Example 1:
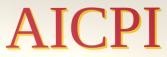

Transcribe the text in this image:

AICPI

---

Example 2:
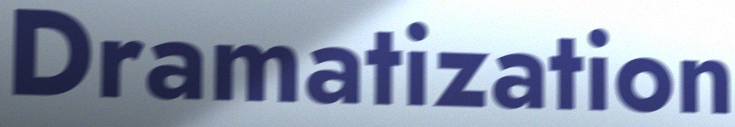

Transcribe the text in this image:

Dramatization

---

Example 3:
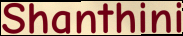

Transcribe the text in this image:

Shanthini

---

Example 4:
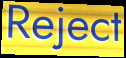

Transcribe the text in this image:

Reject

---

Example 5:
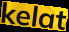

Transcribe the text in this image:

kelat